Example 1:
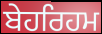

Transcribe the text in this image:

ਬੇਹਰਿਹਮ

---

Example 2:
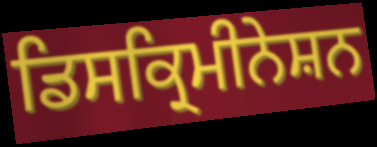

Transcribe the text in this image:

ਡਿਸਕ੍ਰਿਮੀਨੇਸ਼ਨ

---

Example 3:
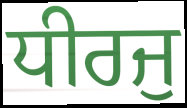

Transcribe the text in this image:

ਧੀਰਜੁ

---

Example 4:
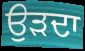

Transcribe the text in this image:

ਉੜਦਾ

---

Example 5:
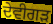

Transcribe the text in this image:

ਦੇਵੀਗੜ